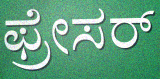
ಫ್ರೇಸರ್